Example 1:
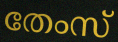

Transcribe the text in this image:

തേംസ്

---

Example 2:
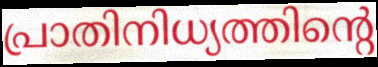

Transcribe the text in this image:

പ്രാതിനിധ്യത്തിന്റെ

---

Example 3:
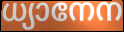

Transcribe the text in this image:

ധ്യാനേന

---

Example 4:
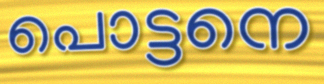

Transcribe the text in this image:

പൊട്ടനെ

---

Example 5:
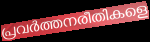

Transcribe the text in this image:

പ്രവർത്തനരീതികളെ